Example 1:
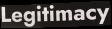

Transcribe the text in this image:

Legitimacy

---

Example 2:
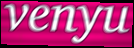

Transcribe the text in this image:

venyu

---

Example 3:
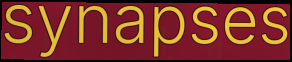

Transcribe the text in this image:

synapses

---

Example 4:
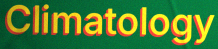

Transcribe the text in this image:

Climatology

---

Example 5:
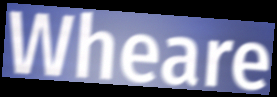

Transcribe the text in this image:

Wheare